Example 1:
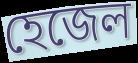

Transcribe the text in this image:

হেজেল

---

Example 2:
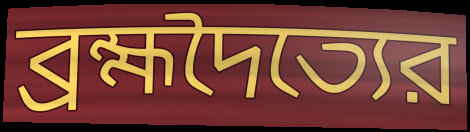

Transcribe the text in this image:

ব্রহ্মদৈত্যের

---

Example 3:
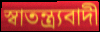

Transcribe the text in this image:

স্বাতন্ত্র্যবাদী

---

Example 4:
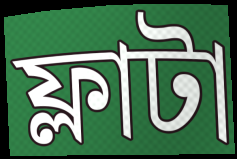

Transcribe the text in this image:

ফ্লাটা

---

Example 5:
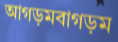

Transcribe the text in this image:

আগড়মবাগড়ম